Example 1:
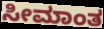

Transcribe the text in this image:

ಸೀಮಾಂತ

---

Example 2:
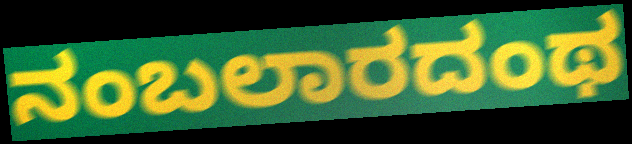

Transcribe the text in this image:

ನಂಬಲಾರದಂಥ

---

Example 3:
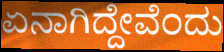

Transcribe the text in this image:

ಏನಾಗಿದ್ದೇವೆಂದು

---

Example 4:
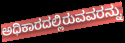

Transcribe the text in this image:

ಅಧಿಕಾರದಲ್ಲಿರುವವರನ್ನು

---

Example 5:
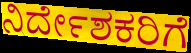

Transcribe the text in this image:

ನಿರ್ದೇಶಕರಿಗೆ